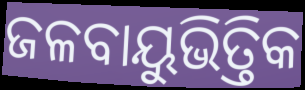
ଜଳବାୟୁଭିତ୍ତିକ